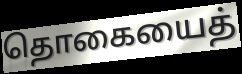
தொகையைத்